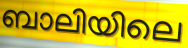
ബാലിയിലെ